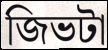
জিভটা